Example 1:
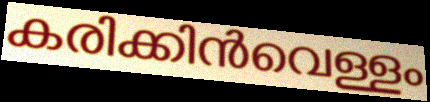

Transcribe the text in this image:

കരിക്കിൻവെള്ളം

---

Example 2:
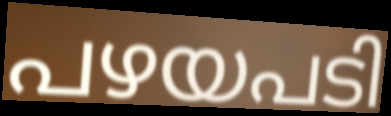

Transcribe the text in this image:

പഴയപടി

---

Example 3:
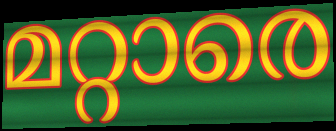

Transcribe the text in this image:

മറ്റാരെ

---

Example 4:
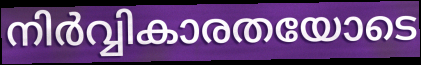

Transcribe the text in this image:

നിർവ്വികാരതയോടെ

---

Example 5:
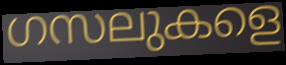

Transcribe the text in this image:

ഗസലുകളെ